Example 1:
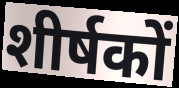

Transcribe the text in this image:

शीर्षकों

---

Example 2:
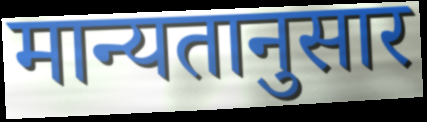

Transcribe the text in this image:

मान्यतानुसार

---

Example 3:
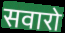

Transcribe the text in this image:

सवारो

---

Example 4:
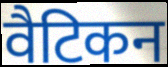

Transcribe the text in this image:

वैटिकन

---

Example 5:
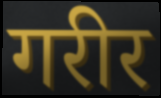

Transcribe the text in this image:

गरीर